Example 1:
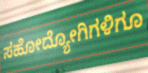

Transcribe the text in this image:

ಸಹೋದ್ಯೋಗಿಗಳಿಗೂ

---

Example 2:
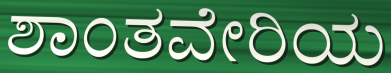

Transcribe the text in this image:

ಶಾಂತವೇರಿಯ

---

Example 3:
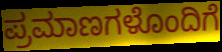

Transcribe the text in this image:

ಪ್ರಮಾಣಗಳೊಂದಿಗೆ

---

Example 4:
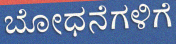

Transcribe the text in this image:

ಬೋಧನೆಗಳಿಗೆ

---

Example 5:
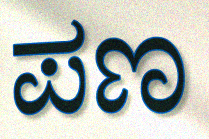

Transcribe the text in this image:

ಪಣ